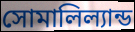
সোমালিল্যান্ড